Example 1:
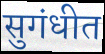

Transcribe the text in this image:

सुगंधीत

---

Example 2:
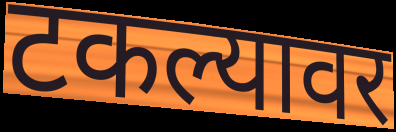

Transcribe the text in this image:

टकल्यावर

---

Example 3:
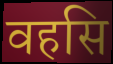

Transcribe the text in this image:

वहसि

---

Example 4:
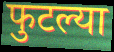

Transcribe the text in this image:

फुटल्या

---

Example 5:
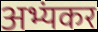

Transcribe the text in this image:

अभ्यंकर